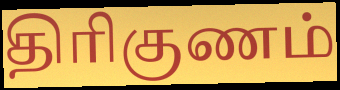
திரிகுணம்